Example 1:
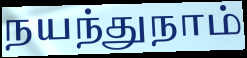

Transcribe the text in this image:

நயந்துநாம்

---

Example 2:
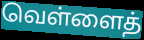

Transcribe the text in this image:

வெள்ளைத்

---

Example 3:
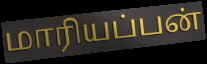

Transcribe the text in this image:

மாரியப்பன்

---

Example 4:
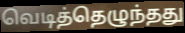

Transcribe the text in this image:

வெடித்தெழுந்தது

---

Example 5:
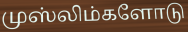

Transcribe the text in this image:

முஸ்லிம்களோடு